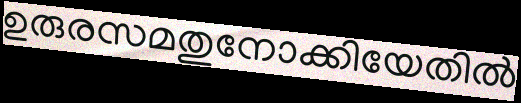
ഉരുരസമതുനോക്കിയേതിൽ